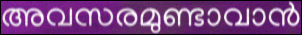
അവസരമുണ്ടാവാൻ